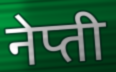
नेप्ती